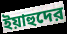
ইয়াহুদের